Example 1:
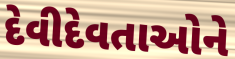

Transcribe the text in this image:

દેવીદેવતાઓને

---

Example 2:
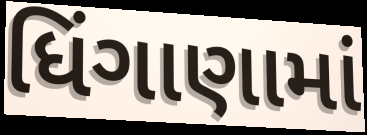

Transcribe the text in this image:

ધિંગાણામાં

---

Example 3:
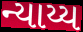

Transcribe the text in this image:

ન્યાય્ય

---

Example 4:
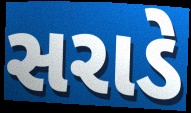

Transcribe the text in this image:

સરાડે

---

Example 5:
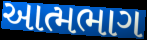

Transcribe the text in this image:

આત્મભાગ